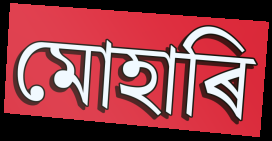
মোহাৰি